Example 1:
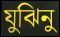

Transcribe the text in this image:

যুঝিনু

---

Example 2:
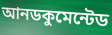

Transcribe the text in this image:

আনডকুমেন্টেড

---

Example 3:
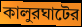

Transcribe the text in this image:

কালুরঘাটের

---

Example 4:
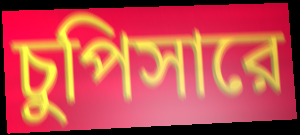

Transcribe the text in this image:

চুপিসারে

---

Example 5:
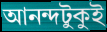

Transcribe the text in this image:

আনন্দটুকুই